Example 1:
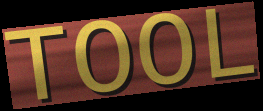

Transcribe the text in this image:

TOOL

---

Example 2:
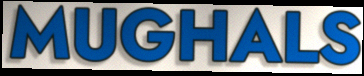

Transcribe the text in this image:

MUGHALS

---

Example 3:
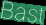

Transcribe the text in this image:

Bast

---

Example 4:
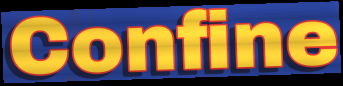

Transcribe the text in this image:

Confine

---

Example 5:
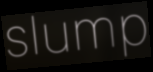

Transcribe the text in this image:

slump